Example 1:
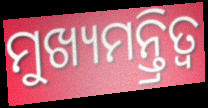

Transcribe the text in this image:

ମୁଖ୍ୟମନ୍ତ୍ରିତ୍ୱ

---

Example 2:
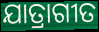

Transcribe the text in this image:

ଯାତ୍ରାଗୀତ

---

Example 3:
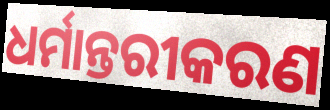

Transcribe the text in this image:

ଧର୍ମାନ୍ତରୀକରଣ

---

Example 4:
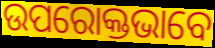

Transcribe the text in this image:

ଉପରୋକ୍ତଭାବେ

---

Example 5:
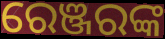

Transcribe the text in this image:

ରେଞ୍ଜରଙ୍କ